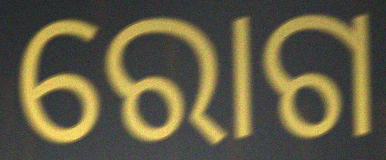
ରୋଗ